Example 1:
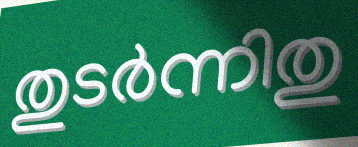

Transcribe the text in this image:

തുടർന്നിതു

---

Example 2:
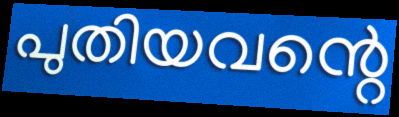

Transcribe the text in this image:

പുതിയവന്റെ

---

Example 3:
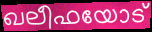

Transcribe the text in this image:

ഖലീഫയോട്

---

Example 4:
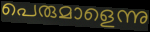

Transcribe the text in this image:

പെരുമാളെന്നു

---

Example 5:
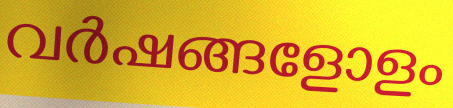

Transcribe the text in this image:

വർഷങ്ങളോളം